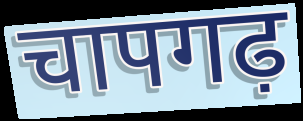
चापगढ़